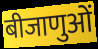
बीजाणुओं